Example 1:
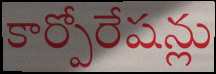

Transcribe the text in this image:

కార్పోరేషన్లు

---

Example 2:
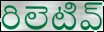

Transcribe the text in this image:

రిలెటివ్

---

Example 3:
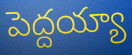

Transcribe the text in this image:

పెద్దయ్యా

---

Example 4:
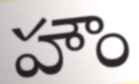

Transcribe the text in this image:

హౌం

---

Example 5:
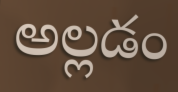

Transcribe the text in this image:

అల్లడం